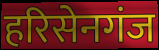
हरिसेनगंज